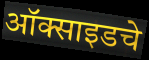
ऑक्साइडचे